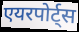
एयरपोर्ट्स